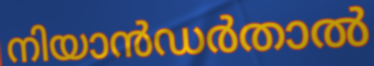
നിയാൻഡർതാൽ